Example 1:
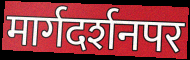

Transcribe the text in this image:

मार्गदर्शनपर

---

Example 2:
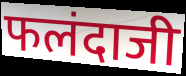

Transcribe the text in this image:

फलंदाजी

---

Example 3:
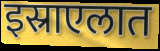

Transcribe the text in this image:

इस्राएलात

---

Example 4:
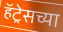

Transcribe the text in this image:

हॅट्रेसच्या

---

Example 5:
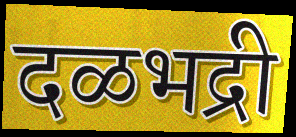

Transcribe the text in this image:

दळभद्री